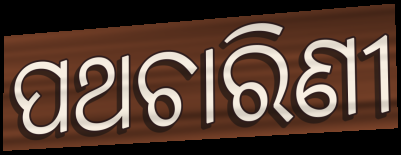
ପଥଚାରିଣୀ